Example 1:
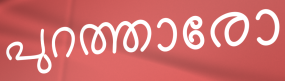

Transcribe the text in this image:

പുറത്താരോ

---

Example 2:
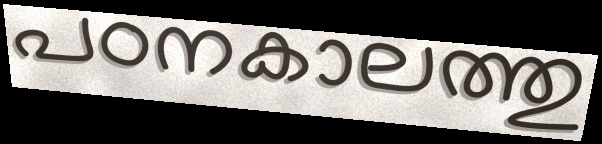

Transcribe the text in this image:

പഠനകാലത്തു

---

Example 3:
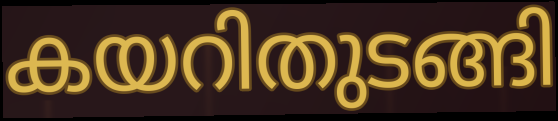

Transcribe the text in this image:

കയറിതുടങ്ങി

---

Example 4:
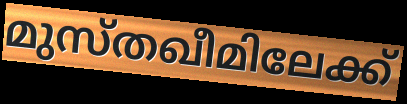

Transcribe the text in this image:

മുസ്തഖീമിലേക്ക്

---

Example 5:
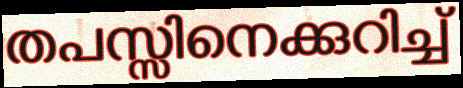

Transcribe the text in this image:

തപസ്സിനെക്കുറിച്ച്